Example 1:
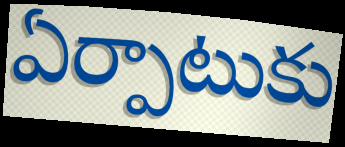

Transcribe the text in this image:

ఏర్పాటుకు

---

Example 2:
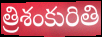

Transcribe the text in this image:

త్రిశంకురితి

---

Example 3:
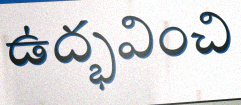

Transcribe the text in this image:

ఉద్భవించి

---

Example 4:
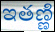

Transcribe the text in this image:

ఇతణ్ణి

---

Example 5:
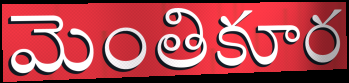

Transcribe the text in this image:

మెంతికూర